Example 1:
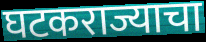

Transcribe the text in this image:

घटकराज्याचा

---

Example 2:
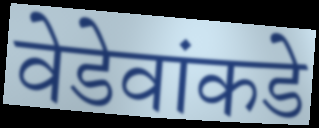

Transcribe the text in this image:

वेडेवांकडे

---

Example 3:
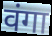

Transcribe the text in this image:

वंगा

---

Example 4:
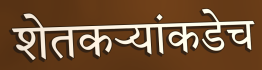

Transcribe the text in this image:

शेतकऱ्यांकडेच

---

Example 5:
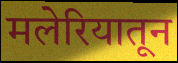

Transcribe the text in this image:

मलेरियातून